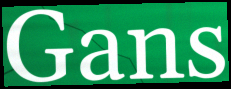
Gans